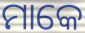
ମାକେ